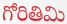
గోరితిమి